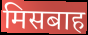
मिसबाह